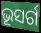
ଭୂସର୍ଗ